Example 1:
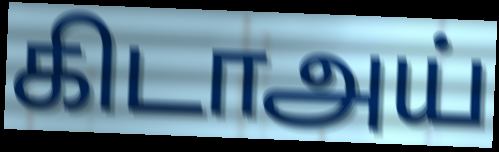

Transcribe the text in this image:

கிடாஅய்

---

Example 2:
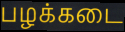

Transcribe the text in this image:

பழக்கடை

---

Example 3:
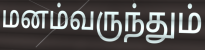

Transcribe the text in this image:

மனம்வருந்தும்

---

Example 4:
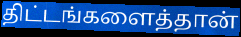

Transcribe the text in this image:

திட்டங்களைத்தான்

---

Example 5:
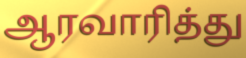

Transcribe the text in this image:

ஆரவாரித்து